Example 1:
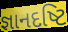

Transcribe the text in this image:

જ્ઞાનદષ્ટિ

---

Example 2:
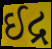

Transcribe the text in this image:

ઈદ્ર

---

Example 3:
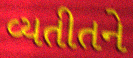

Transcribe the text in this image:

વ્યતીતને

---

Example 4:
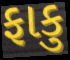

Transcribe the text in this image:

ફાકુ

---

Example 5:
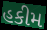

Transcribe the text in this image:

હકીમ